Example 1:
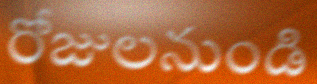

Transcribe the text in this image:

రోజులనుండి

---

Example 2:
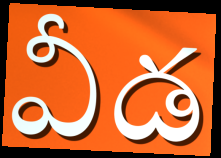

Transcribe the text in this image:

వీడ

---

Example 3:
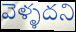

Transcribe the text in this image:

వెళ్ళదని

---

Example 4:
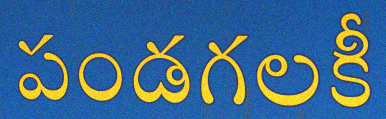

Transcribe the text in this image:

పండగలకీ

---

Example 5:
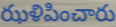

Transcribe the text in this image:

ఝళిపించారు